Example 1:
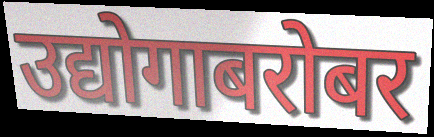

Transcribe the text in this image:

उद्योगाबरोबर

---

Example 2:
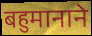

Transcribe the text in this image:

बहुमानाने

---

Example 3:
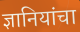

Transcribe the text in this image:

ज्ञानियांचा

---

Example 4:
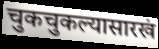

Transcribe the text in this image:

चुकचुकल्यासारखं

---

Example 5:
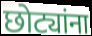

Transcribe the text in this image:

छोट्यांना